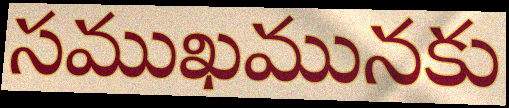
సముఖమునకు